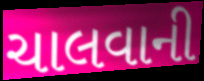
ચાલવાની